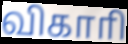
விகாரி